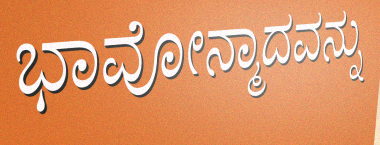
ಭಾವೋನ್ಮಾದವನ್ನು